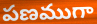
పణముగా